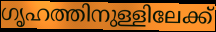
ഗൃഹത്തിനുള്ളിലേക്ക്